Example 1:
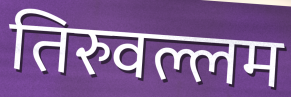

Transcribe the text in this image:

तिरुवल्लम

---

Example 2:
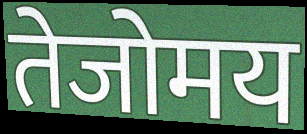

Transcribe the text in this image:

तेजोमय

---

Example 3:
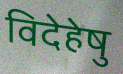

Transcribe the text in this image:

विदेहेषु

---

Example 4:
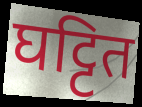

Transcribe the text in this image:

घट्टित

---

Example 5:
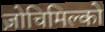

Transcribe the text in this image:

ज़ोचिमिल्को